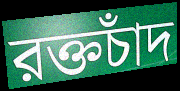
রক্তচাঁদ